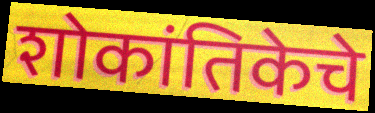
शोकांतिकेचे